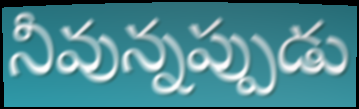
నీవున్నప్పుడు